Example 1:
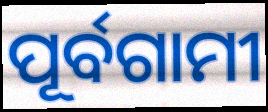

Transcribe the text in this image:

ପୂର୍ବଗାମୀ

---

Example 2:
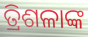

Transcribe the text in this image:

ତ୍ରିଶଳାଙ୍କ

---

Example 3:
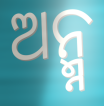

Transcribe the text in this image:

ଅନ୍ମ୍ନ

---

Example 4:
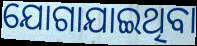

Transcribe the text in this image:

ଯୋଗାଯାଇଥିବା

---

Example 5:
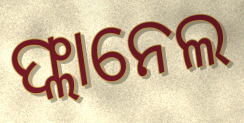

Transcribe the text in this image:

ଫ୍ଲାନେଲ